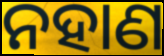
ନହାଣ